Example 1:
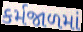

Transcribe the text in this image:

કર્મજાળમાં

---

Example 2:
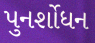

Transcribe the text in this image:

પુનર્શોધન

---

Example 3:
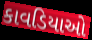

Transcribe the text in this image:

કાવડિયાઓ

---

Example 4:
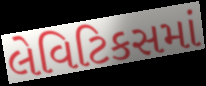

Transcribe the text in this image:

લેવિટિકસમાં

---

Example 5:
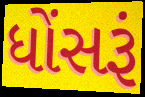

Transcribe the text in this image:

ધોંસરૂં